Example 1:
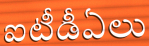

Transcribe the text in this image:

ఐటీడీఏలు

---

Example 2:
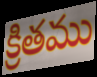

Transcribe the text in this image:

క్రితము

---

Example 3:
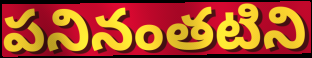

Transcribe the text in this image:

పనినంతటిని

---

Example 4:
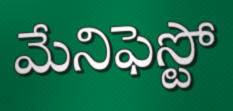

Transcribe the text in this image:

మేనిఫెస్టో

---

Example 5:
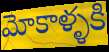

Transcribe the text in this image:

మోకాళ్ళకి